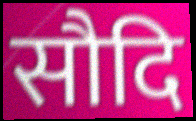
सौदि